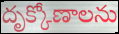
దృక్కోణాలను